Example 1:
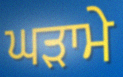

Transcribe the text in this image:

ਘੜਾਮੇ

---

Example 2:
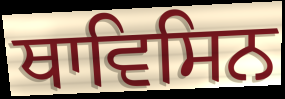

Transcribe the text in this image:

ਥਾਵਿਸਿਨ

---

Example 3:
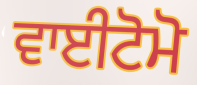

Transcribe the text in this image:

ਵਾਈਟੋਮੋ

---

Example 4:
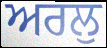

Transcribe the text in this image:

ਅਰਲੁ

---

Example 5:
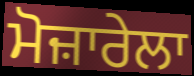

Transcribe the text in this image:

ਮੋਜ਼ਾਰੇਲਾ